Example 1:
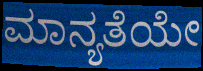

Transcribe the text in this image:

ಮಾನ್ಯತೆಯೇ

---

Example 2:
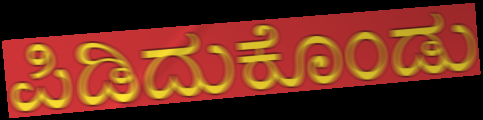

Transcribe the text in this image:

ಪಿಡಿದುಕೊಂಡು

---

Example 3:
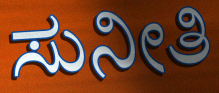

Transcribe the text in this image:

ಸುನೀತಿ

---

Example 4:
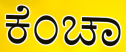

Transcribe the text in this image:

ಕೆಂಚಾ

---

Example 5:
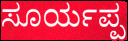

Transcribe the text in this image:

ಸೂರ್ಯಪ್ಪ